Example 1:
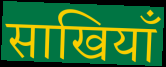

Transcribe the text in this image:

साखियाँ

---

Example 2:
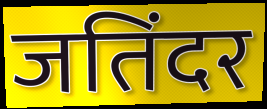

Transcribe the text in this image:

जतिंदर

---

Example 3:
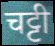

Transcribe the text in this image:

चट्टी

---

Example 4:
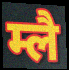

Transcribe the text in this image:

म्लै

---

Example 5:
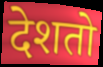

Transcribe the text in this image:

देशतो